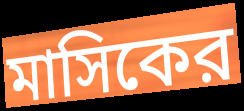
মাসিকের